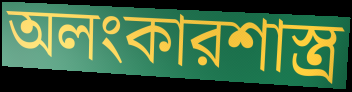
অলংকারশাস্ত্র